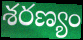
శరణ్యం